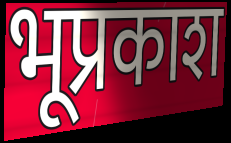
भूप्रकाश